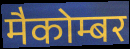
मैकोम्बर